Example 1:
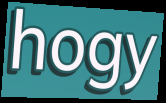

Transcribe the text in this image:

hogy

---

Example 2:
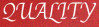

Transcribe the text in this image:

QUALITY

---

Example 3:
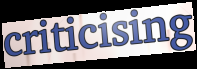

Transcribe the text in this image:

criticising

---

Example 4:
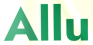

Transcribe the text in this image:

Allu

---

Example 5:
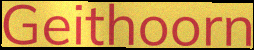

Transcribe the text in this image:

Geithoorn